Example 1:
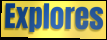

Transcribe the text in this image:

Explores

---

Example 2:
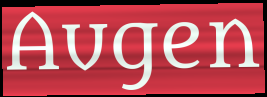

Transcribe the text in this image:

Augen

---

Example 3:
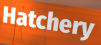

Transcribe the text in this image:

Hatchery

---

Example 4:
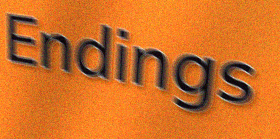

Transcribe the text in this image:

Endings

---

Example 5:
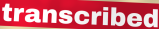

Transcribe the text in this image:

transcribed